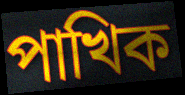
পাখিক